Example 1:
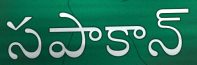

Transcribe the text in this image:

సపాకాన్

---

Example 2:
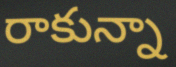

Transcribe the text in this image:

రాకున్నా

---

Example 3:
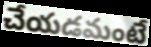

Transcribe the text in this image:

చేయడమంటే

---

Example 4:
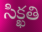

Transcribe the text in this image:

సిక్ఖతి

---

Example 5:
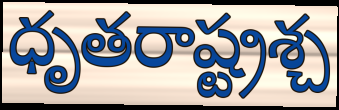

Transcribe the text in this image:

ధృతరాష్ట్రశ్చ